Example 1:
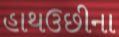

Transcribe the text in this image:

હાથઉછીના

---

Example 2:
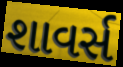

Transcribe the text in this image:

શાવર્સ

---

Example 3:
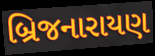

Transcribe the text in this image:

બ્રિજનારાયણ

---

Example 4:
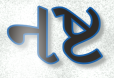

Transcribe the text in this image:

નષ્ટ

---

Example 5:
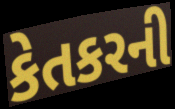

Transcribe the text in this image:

કેતકરની